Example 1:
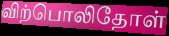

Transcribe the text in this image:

விற்பொலிதோள்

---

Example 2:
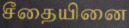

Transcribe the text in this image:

சீதையினை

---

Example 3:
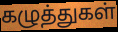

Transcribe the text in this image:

கழுத்துகள்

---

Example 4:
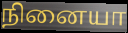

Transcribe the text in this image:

நினையா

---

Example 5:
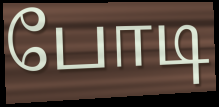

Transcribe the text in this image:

போடி